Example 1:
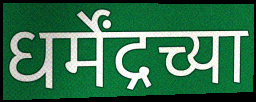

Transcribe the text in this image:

धर्मेंद्रच्या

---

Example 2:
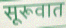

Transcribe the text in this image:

सूरूवात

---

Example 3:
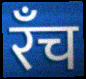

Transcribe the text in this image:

रँच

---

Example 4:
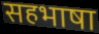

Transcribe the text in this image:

सहभाषा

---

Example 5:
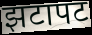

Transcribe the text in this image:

झटापट